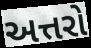
અત્તરો